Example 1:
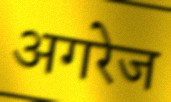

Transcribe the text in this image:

अगरेज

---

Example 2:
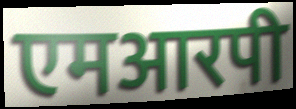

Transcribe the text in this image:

एमआरपी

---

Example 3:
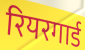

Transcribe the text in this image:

रियरगार्ड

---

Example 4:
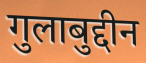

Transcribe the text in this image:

गुलाबुद्दीन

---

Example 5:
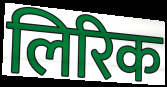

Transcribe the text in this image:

लिरिक